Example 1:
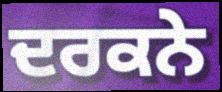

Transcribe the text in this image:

ਦਰਕਨੇ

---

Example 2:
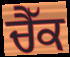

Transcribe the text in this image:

ਚੈੱਕ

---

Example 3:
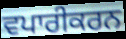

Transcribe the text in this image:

ਵਪਾਰੀਕਰਨ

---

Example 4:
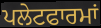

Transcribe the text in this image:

ਪਲੇਟਫਾਰਮਾਂ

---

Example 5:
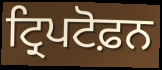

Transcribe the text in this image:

ਟ੍ਰਿਪਟੋਫ਼ਨ